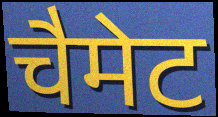
चैमेट